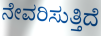
ನೇವರಿಸುತ್ತಿದೆ